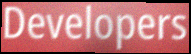
Developers